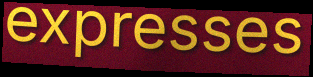
expresses